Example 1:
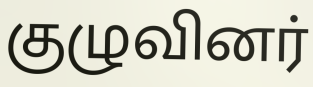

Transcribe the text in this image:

குழுவினர்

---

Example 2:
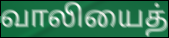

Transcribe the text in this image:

வாலியைத்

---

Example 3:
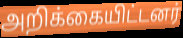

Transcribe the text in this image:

அறிக்கையிட்டனர்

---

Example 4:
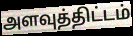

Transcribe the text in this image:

அளவுத்திட்டம்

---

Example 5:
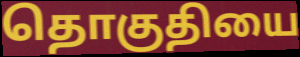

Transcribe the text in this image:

தொகுதியை